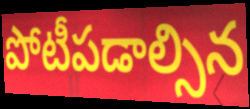
పోటీపడాల్సిన